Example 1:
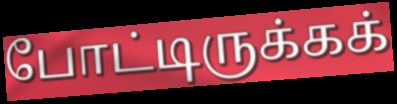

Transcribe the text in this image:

போட்டிருக்கக்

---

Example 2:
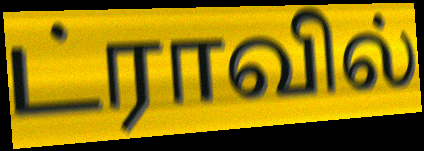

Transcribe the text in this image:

ட்ராவில்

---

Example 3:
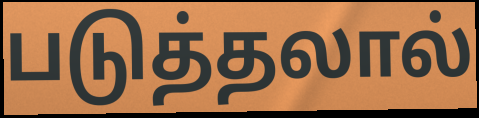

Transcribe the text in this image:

படுத்தலால்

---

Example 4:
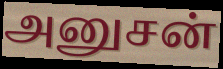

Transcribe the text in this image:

அனுசன்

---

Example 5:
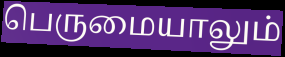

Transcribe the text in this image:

பெருமையாலும்